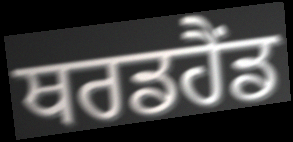
ਥਰਡਹੈਂਡ